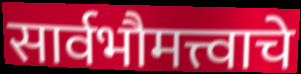
सार्वभौमत्त्वाचे